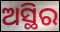
ଅସ୍ଥିର